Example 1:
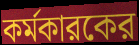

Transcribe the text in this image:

কর্মকারকের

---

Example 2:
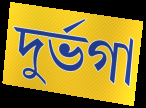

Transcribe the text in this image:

দুর্ভগা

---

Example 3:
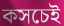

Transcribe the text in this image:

কসচেই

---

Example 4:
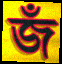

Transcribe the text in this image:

জঁ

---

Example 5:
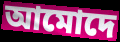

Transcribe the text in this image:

আমোদে